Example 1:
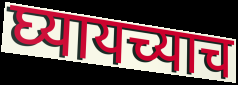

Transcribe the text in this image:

घ्यायच्याच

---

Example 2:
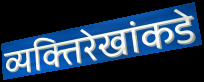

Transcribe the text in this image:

व्यक्तिरेखांकडे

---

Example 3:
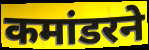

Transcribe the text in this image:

कमांडरने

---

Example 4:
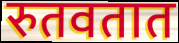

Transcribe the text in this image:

रुतवतात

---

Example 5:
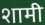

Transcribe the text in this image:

शामी